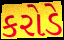
કરોડે